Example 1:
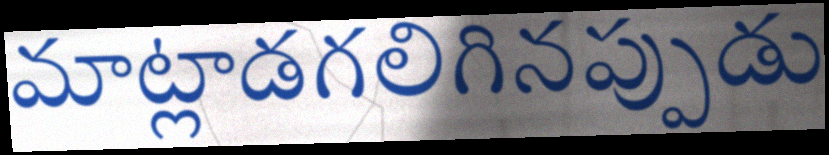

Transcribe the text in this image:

మాట్లాడగలిగినప్పుడు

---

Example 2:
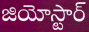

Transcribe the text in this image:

జియోస్టార్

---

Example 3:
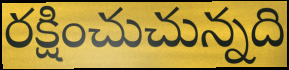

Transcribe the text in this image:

రక్షించుచున్నది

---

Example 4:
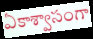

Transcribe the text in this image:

ఏకాశ్వాసంగా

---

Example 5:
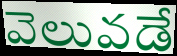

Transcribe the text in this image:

వెలువడే